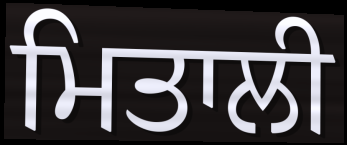
ਮਿਤਾਲੀ